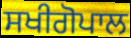
ਸਖੀਗੋਪਾਲ